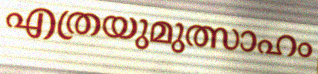
എത്രയുമുത്സാഹം